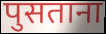
पुसताना